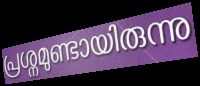
പ്രശ്നമുണ്ടായിരുന്നു